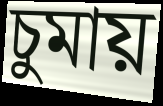
চুমায়